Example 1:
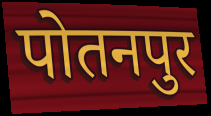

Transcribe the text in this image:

पोतनपुर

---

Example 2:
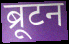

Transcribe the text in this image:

ब्रूटन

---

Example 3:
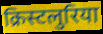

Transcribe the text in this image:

क्रिस्टलुरिया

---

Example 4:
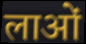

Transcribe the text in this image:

लाओं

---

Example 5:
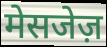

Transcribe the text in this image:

मेसजेज़